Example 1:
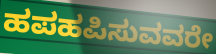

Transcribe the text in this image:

ಹಪಹಪಿಸುವವರೇ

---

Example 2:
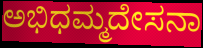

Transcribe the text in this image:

ಅಭಿಧಮ್ಮದೇಸನಾ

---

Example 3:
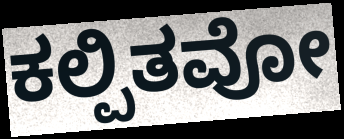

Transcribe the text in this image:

ಕಲ್ಪಿತವೋ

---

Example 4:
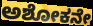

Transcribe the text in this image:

ಅಶೋಕನೇ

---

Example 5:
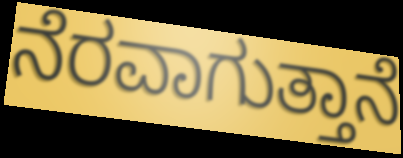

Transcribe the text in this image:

ನೆರವಾಗುತ್ತಾನೆ